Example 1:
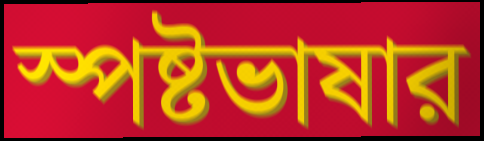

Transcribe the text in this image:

স্পষ্টভাষার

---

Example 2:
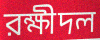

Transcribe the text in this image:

রক্ষীদল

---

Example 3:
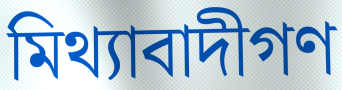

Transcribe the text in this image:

মিথ্যাবাদীগণ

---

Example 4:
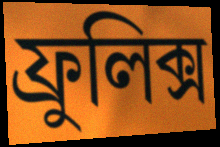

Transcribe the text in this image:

ফ্রুলিক্স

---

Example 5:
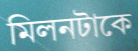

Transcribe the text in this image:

মিলনটাকে